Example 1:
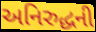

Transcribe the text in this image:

અનિરુદ્ધની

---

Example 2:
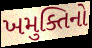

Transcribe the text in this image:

ખમુક્તિનો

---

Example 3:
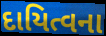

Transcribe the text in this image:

દાયિત્વના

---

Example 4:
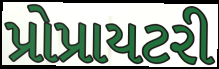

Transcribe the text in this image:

પ્રોપ્રાયટરી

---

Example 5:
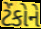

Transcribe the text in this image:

ટેંકોને